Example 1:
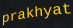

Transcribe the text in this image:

prakhyat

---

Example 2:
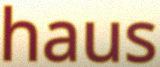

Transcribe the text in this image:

haus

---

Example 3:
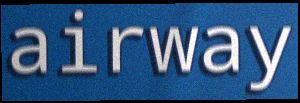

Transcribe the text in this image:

airway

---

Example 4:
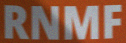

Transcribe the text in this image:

RNMF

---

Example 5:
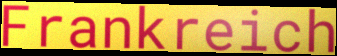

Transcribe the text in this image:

Frankreich